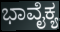
ಭಾವೈಕ್ಯ